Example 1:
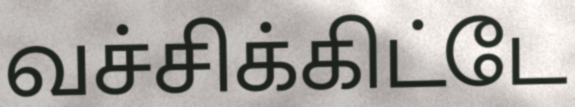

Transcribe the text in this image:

வச்சிக்கிட்டே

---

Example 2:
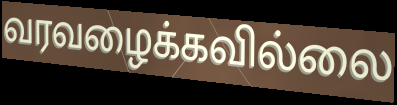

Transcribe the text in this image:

வரவழைக்கவில்லை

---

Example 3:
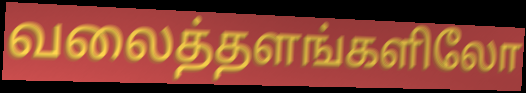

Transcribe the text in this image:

வலைத்தளங்களிலோ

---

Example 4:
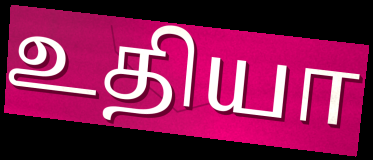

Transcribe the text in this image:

உதியா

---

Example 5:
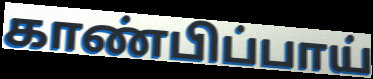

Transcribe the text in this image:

காண்பிப்பாய்